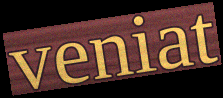
veniat